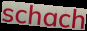
schach